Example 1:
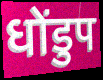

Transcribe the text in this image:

धोंडुप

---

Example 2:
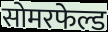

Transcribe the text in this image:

सोमरफेल्ड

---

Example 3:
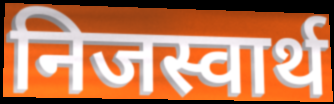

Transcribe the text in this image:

निजस्वार्थ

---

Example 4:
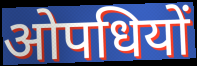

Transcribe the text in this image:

ओपधियों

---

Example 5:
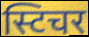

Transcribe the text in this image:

स्टिचर